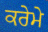
ਕਰੇਮੇ